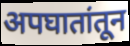
अपघातांतून